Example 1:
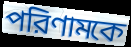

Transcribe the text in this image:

পরিণামকে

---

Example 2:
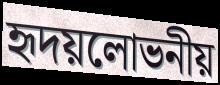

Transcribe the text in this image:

হৃদয়লোভনীয়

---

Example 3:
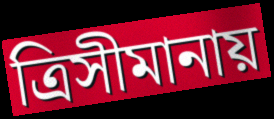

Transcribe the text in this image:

ত্রিসীমানায়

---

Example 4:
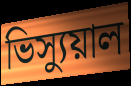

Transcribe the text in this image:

ভিস্যুয়াল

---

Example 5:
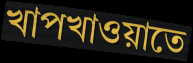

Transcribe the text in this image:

খাপখাওয়াতে